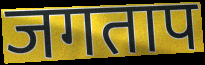
जगताप